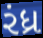
રંધ્ર